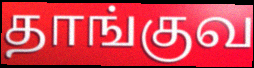
தாங்குவ